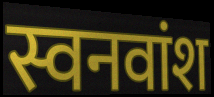
स्वनवांश